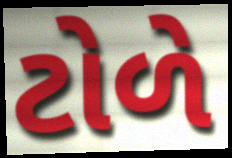
ટોળે